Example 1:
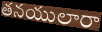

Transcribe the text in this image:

తనయులారా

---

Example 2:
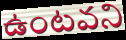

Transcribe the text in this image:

ఉంటవని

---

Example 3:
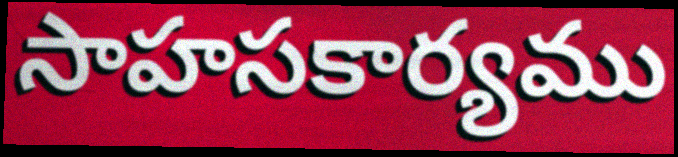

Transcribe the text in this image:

సాహసకార్యము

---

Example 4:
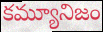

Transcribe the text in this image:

కమ్యూనిజం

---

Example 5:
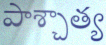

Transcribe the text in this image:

పాశ్చాత్య